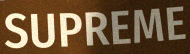
SUPREME